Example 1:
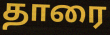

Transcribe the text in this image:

தாரை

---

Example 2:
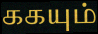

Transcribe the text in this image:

ககயும்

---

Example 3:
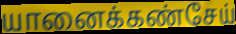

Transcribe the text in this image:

யானைக்கண்சேய்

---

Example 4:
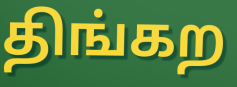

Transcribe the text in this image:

திங்கற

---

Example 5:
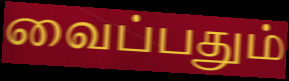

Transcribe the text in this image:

வைப்பதும்